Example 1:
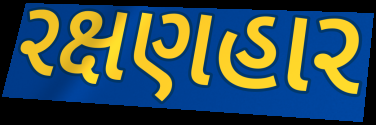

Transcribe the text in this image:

રક્ષણહાર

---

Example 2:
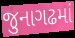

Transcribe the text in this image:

જુનાગઢમાં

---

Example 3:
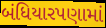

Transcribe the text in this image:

બંધિયારપણામાં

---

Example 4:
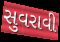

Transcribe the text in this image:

સુવરાવી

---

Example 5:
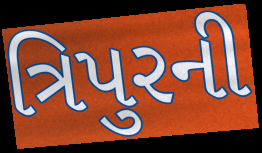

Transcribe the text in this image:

ત્રિપુરની